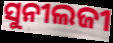
ସୁନୀଲଜୀ